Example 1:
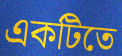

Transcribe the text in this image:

একটিতে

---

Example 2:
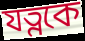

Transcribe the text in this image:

যত্নকে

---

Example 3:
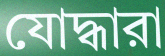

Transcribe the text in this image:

যোদ্ধারা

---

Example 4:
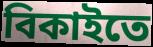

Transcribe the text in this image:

বিকাইতে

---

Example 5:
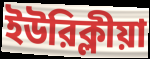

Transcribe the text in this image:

ইউরিক্লীয়া